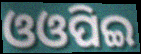
ଓଓପିଇ